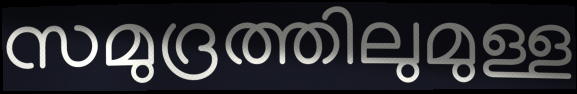
സമുദ്രത്തിലുമുള്ള